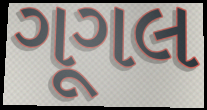
ગૂગલ